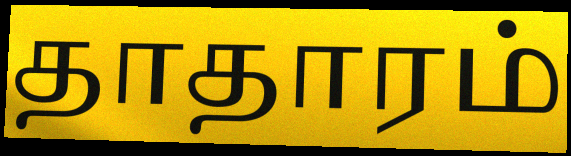
தாதாரம்